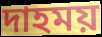
দাহময়